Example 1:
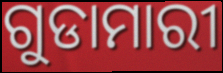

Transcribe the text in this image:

ଗୁଡାମାରୀ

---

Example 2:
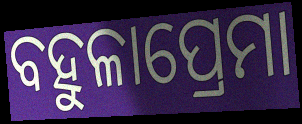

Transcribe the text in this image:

ବହୁଳାପ୍ରେମା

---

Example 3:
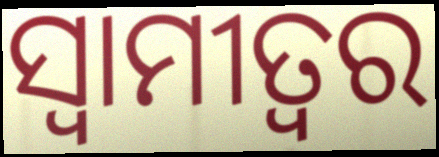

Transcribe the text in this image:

ସ୍ୱାମୀତ୍ୱର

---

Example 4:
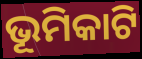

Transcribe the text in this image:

ଭୂମିକାଟି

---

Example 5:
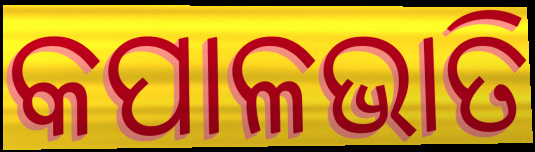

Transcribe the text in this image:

କପାଳଭାତି